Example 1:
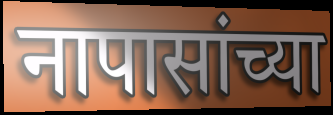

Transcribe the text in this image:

नापासांच्या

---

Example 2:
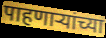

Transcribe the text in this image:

पाहणार्‍यांच्या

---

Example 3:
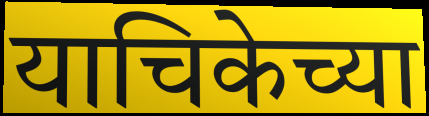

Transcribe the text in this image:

याचिकेच्या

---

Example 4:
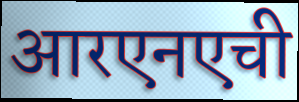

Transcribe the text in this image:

आरएनएची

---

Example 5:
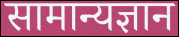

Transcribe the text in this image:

सामान्यज्ञान